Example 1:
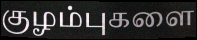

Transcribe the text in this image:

குழம்புகளை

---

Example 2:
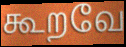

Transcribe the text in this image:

கூறவே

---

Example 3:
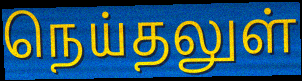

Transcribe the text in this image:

நெய்தலுள்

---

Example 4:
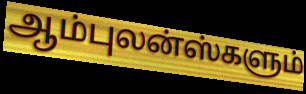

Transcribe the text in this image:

ஆம்புலன்ஸ்களும்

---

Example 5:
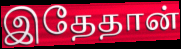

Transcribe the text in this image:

இதேதான்